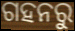
ଗହନରୁ